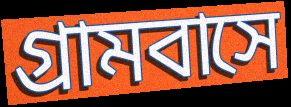
গ্রামবাসে